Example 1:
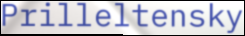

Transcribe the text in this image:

Prilleltensky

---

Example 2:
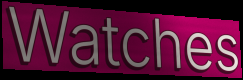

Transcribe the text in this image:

Watches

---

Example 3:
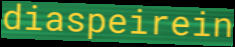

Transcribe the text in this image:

diaspeirein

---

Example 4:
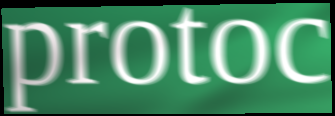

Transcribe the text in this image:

protoc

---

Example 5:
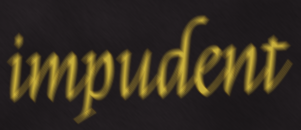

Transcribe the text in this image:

impudent